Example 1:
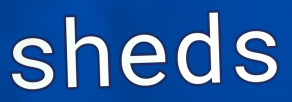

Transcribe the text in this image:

sheds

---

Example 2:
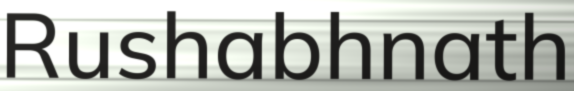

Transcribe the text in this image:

Rushabhnath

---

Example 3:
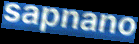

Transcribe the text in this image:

sapnano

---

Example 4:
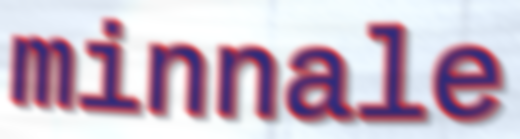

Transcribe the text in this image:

minnale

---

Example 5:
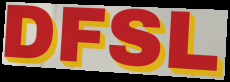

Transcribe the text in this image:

DFSL